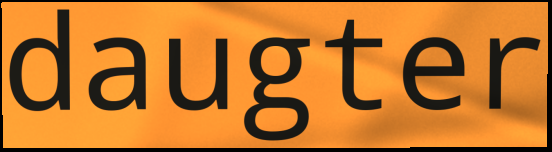
daugter